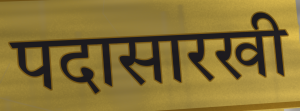
पदासारखी